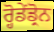
ਰ੍ਹੋਡੇਂਡ੍ਰੋਨ